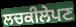
ਲਚਕੀਲੇਪਣ